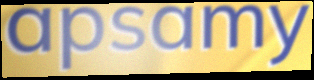
apsamy